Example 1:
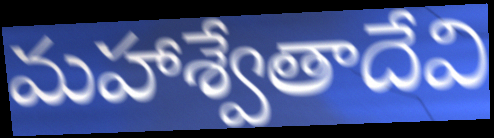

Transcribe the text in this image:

మహాశ్వేతాదేవి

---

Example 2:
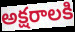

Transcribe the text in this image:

అక్షరాలకి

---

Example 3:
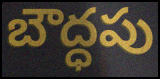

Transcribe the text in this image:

బౌద్ధపు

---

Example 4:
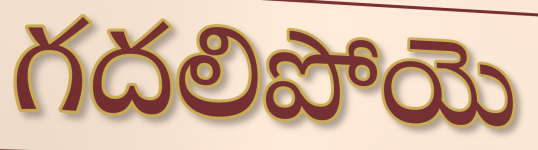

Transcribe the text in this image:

గదలిపోయె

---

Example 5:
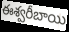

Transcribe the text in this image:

ఈశ్వరీబాయి